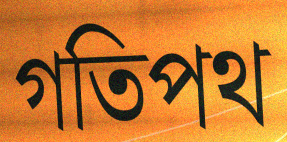
গতিপথ